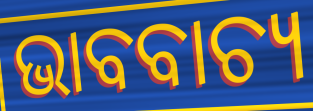
ଭାବବାଚ୍ୟ